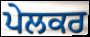
ਪੇਲਕਰ